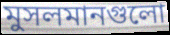
মুসলমানগুলো